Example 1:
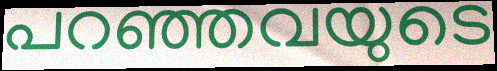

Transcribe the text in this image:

പറഞ്ഞവയുടെ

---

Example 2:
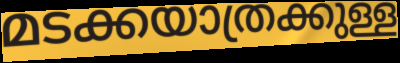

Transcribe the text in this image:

മടക്കയാത്രക്കുള്ള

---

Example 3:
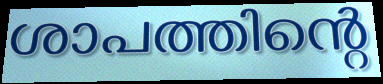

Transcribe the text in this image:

ശാപത്തിന്റെ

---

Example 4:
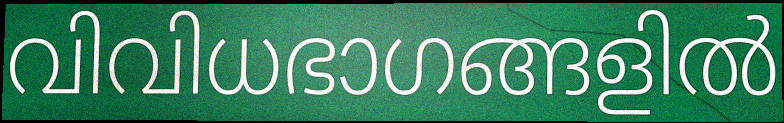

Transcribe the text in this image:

വിവിധഭാഗങ്ങളിൽ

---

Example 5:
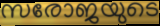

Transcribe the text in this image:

സരോജയുടെ